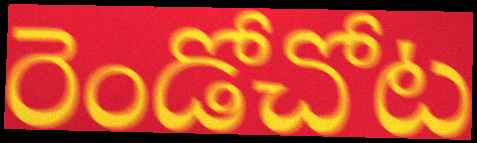
రెండోచోట